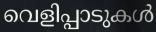
വെളിപ്പാടുകൾ